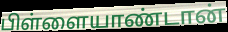
பிள்ளையாண்டான்